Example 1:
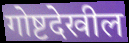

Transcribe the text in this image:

गोष्टदेखील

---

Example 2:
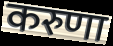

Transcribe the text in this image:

करुणा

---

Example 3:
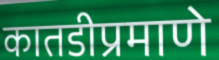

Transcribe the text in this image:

कातडीप्रमाणे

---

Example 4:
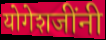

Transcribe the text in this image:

योगेशजींनी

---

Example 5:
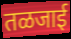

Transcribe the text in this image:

तळजाई